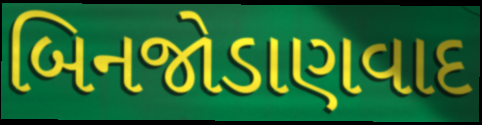
બિનજોડાણવાદ